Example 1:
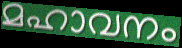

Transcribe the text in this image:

മഹാവനം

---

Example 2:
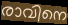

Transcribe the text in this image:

രാവിനെ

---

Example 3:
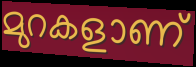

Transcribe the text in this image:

മുറകളാണ്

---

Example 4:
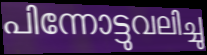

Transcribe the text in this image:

പിന്നോട്ടുവലിച്ചു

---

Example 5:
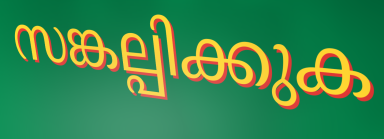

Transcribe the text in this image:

സങ്കല്പിക്കുക